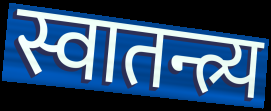
स्वातन्त्र्य